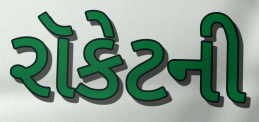
રૉકેટની